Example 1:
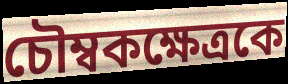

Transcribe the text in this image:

চৌম্বকক্ষেত্রকে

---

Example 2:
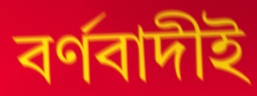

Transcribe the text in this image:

বর্ণবাদীই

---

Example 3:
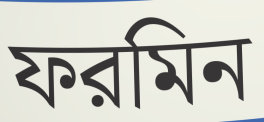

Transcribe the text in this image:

ফরমিন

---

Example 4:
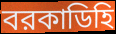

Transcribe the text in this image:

বরকাডিহি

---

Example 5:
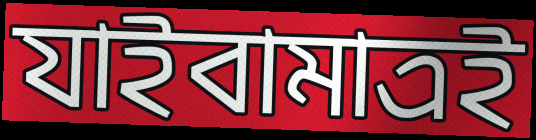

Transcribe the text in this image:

যাইবামাত্রই